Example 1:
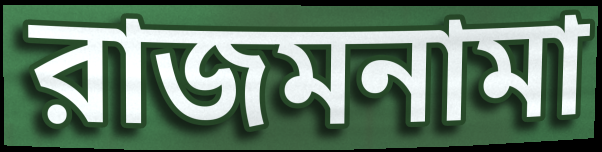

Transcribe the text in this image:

রাজমনামা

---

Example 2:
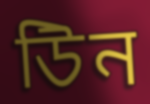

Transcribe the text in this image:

উিন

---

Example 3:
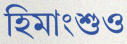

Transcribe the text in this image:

হিমাংশুও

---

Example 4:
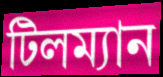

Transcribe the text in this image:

টিলম্যান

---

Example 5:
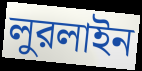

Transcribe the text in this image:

লুরলাইন